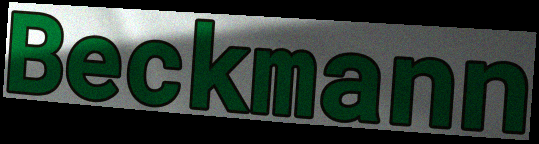
Beckmann